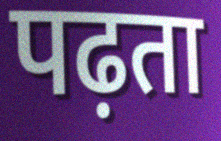
पढ़ता